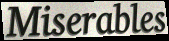
Miserables